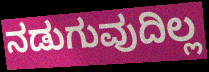
ನಡುಗುವುದಿಲ್ಲ